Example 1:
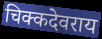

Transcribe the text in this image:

चिक्कदेवराय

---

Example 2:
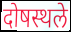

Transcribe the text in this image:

दोषस्थले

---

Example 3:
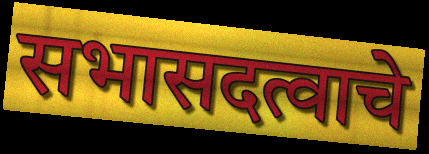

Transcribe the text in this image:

सभासदत्वाचे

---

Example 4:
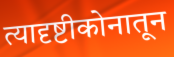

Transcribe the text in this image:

त्यादृष्टीकोनातून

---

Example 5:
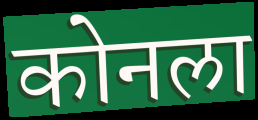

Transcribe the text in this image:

कोनला